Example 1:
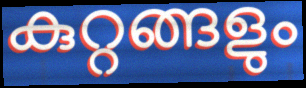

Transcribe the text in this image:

കുറ്റങ്ങളും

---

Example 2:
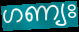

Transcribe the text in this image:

ഗണ്യഃ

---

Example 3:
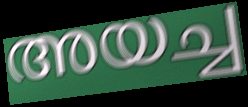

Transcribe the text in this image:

അയച്ച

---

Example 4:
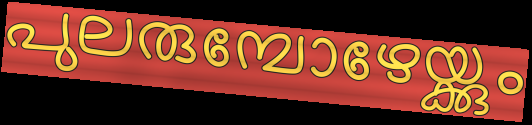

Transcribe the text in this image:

പുലരുമ്പോഴേയ്ക്കും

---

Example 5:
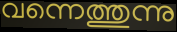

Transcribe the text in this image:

വന്നെത്തുന്നു